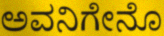
ಅವನಿಗೇನೊ